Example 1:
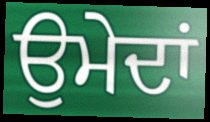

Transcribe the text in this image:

ਉਮੇਦਾਂ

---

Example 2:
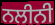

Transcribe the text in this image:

ਨਲੀਨੀ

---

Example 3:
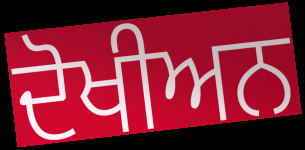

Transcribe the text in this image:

ਦੋਖੀਅਨ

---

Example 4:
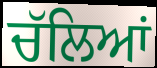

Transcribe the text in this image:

ਚੱਲਿਆਂ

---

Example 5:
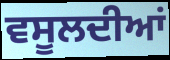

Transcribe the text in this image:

ਵਸੂਲਦੀਆਂ